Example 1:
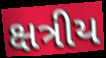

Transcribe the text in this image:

ક્ષત્રીય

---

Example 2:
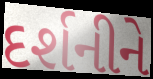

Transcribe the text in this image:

દર્શનીને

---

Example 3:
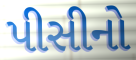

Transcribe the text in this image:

પીસીનો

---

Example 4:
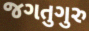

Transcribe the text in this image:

જગતુગુરુ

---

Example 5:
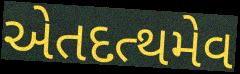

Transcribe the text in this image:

એતદત્થમેવ